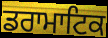
ਡਰਾਮਾਟਿਕ